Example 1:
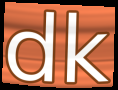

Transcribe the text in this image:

dk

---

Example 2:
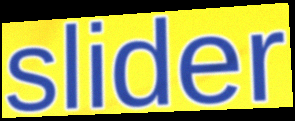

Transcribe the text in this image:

slider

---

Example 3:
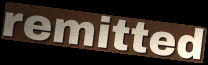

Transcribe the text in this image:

remitted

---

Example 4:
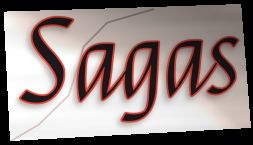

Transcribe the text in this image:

Sagas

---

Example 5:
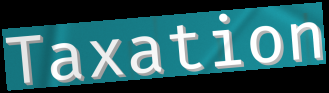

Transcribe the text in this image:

Taxation